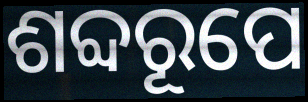
ଶବ୍ଦରୂପେ